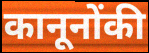
कानूनोंकी